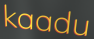
kaadu